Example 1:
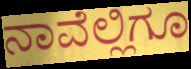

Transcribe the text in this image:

ನಾವೆಲ್ಲಿಗೂ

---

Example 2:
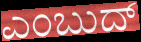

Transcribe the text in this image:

ಎಂಬುದ್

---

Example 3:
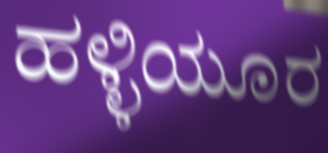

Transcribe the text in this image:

ಹಳ್ಳಿಯೂರ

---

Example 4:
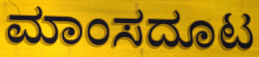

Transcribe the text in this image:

ಮಾಂಸದೂಟ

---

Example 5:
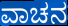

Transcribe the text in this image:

ವಾಚನ